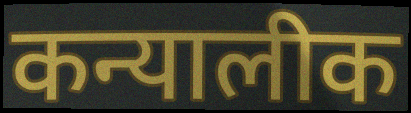
कन्यालीक